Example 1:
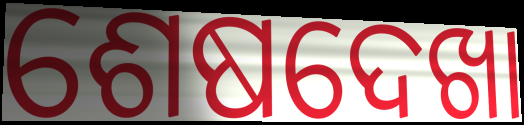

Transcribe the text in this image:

ଶେଷଦେଖା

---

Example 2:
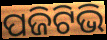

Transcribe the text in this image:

ପଜିଟିଭି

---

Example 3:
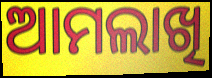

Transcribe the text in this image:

ଆମଲାଖି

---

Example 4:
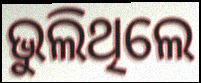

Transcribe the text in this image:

ଭୁଲିଥିଲେ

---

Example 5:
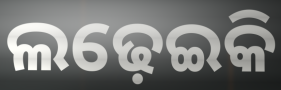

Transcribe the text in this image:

ଲଢ଼େଇକି